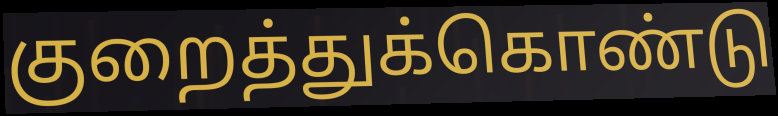
குறைத்துக்கொண்டு